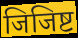
जिजिष्ट